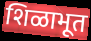
शिळाभूत